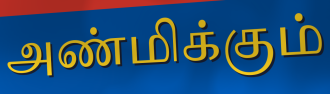
அண்மிக்கும்